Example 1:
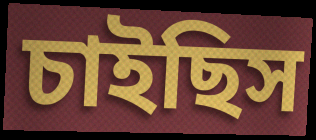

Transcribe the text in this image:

চাইছিস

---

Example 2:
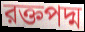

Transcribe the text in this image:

রক্তপদ্ম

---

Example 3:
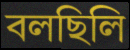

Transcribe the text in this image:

বলছিলি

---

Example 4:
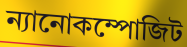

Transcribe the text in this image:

ন্যানোকম্পোজিট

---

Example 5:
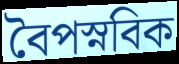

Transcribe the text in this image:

বৈপস্নবিক